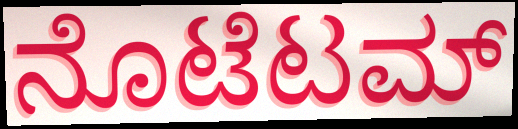
ನೊಟೆಟಮ್